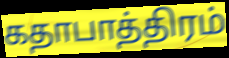
கதாபாத்திரம்